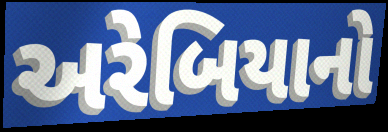
અરેબિયાનો